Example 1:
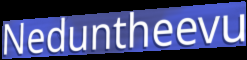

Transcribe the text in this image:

Neduntheevu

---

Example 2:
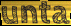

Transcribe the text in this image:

unta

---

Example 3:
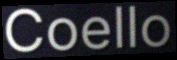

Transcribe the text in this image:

Coello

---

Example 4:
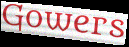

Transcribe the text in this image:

Gowers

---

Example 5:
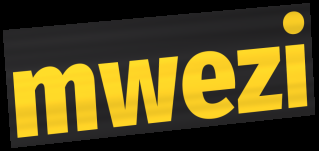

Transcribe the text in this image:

mwezi